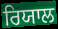
ਰਿਯਾਲ